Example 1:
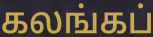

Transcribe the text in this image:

கலங்கப்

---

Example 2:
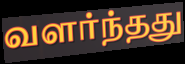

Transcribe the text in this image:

வளர்ந்தது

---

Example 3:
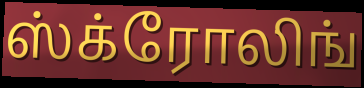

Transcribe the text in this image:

ஸ்க்ரோலிங்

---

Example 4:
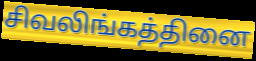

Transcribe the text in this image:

சிவலிங்கத்தினை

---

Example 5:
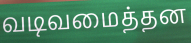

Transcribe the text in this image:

வடிவமைத்தன